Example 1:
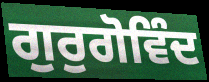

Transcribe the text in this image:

ਗੁਰੁਗੋਵਿੰਦ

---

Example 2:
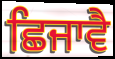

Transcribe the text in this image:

ਛਿਜਾਵੈ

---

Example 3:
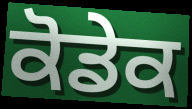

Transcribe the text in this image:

ਕੋਡੇਕ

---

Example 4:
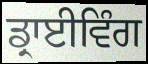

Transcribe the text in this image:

ਡ੍ਰਾਈਵਿੰਗ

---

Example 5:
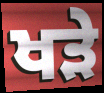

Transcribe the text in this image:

ਖੜੇ